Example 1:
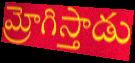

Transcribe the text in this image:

మ్రోగిస్తాడు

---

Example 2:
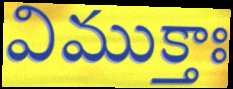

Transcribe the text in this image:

విముక్తాః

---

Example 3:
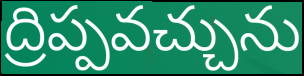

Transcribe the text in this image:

ద్రిప్పవచ్చును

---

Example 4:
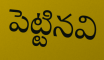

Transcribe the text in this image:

పెట్టినవి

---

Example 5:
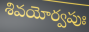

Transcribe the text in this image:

శివయోర్వపుః